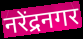
नरेंद्रनगर